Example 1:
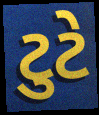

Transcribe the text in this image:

ટુટે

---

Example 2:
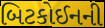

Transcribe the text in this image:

બિટકોઈનની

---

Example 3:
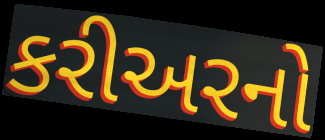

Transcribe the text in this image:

કરીઅરનો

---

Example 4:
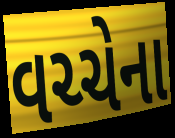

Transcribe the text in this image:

વચ્ચેના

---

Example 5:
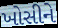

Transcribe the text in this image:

ખોસીને